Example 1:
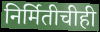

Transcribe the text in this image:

निर्मितीचीही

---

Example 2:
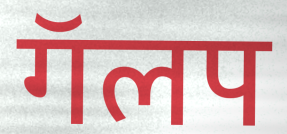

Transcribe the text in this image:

गॅलप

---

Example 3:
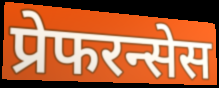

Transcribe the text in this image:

प्रेफरन्सेस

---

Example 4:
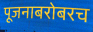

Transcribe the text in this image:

पूजनाबरोबरच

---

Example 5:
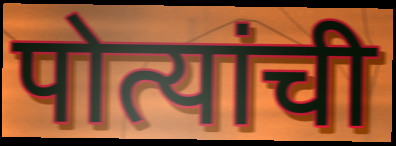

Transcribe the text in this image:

पोत्यांची